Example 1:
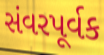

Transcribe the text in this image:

સંવરપૂર્વક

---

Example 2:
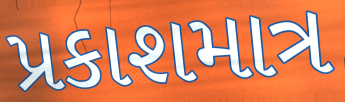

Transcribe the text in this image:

પ્રકાશમાત્ર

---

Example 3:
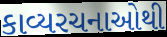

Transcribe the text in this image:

કાવ્યરચનાઓથી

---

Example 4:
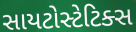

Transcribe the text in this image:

સાયટોસ્ટેટિક્સ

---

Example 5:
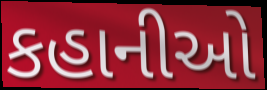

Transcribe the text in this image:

કહાનીઓ